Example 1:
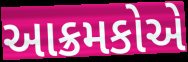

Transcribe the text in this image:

આક્રમકોએ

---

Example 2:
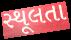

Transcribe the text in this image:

સ્થૂલતા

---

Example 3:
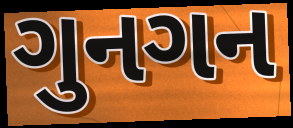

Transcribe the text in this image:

ગુનગન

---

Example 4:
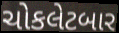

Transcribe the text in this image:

ચોકલેટબાર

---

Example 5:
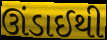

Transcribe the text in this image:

ઊંડાઈથી